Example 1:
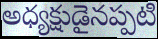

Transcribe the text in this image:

అధ్యక్షుడైనప్పటి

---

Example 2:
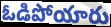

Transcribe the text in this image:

ఓడిపోయారు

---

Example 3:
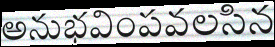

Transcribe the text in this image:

అనుభవింపవలసిన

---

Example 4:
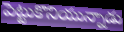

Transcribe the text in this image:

పెట్టుకొనియున్నాడు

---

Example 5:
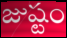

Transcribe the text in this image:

జుష్టం